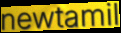
newtamil